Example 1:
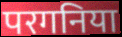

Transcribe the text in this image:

परगनिया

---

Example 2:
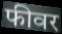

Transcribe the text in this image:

फीवर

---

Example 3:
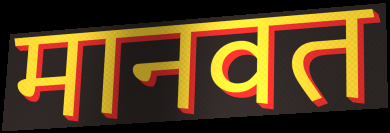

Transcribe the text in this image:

मानवत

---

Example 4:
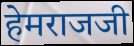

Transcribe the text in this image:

हेमराजजी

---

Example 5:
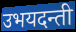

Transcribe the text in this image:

उभयदन्ती